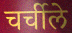
चर्चीले